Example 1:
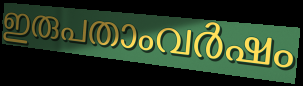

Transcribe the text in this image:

ഇരുപതാംവർഷം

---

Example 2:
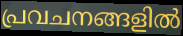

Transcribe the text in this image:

പ്രവചനങ്ങളിൽ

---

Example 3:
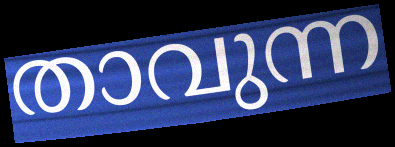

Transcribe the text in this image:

താവുന്ന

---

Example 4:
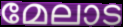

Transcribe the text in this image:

മേലാട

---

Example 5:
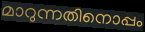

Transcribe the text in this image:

മാറുന്നതിനൊപ്പം